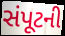
સંપૂટની